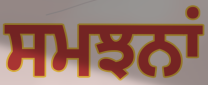
ਸਮਝਨਾਂ